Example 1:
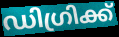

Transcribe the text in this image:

ഡിഗ്രിക്ക്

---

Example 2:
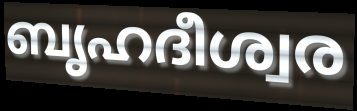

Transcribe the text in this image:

ബൃഹദീശ്വര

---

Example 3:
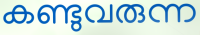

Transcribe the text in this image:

കണ്ടുവരുന്ന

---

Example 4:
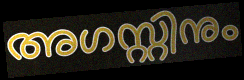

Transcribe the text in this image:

അഗസ്റ്റിനും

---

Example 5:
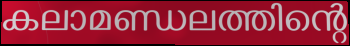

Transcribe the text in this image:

കലാമണ്ഡലത്തിന്റെ